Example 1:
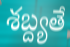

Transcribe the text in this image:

శబ్ద్యతే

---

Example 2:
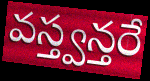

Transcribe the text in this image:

వస్త్వన్తరే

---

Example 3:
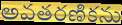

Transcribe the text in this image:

అవతరణికను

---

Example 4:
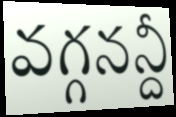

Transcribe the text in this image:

వగ్గనన్దీ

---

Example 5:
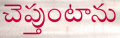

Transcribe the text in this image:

చెప్తుంటాను